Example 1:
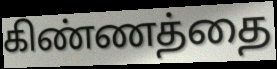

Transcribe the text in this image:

கிண்ணத்தை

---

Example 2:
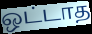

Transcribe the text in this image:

ஒட்டாத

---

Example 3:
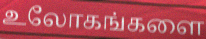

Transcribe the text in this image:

உலோகங்களை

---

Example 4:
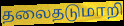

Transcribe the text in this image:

தலைதடுமாறி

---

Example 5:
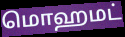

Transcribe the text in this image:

மொஹமட்